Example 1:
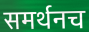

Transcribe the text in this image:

समर्थनच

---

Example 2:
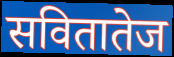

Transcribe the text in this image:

सवितातेज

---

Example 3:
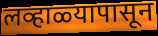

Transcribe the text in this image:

लव्हाळ्यापासून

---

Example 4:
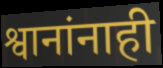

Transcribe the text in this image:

श्वानांनाही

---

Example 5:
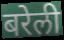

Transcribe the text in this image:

बरेली